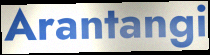
Arantangi